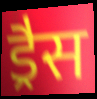
ड्रैस